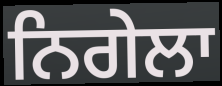
ਨਿਗੇਲਾ